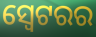
ସ୍ୱେଟରର